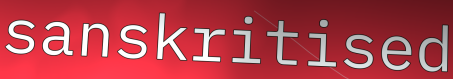
sanskritised